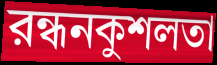
রন্ধনকুশলতা